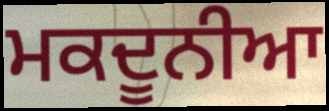
ਮਕਦੂਨੀਆ